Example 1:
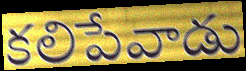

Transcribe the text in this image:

కలిపేవాడు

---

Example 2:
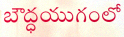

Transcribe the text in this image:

బౌద్ధయుగంలో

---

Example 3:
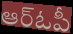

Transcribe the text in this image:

ఆర్ఓపీ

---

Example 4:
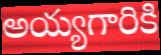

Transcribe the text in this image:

అయ్యగారికి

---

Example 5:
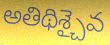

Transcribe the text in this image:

అతిథిశ్చైవ